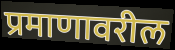
प्रमाणावरील